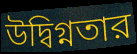
উদ্বিগ্নতার